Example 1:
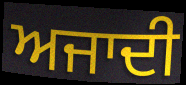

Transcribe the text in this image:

ਅਜਾਦੀ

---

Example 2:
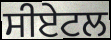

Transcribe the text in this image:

ਸੀਏਟਲ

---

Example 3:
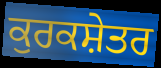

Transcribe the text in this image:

ਕੁਰਕਸ਼ੇਤਰ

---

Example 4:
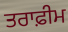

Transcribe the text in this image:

ਤਰਾਫ਼ੀਮ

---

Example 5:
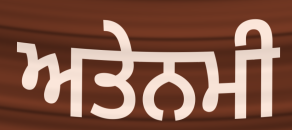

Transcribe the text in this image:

ਅਤੇਨਮੀ